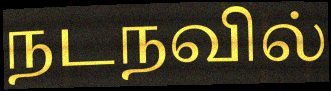
நடநவில்